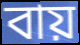
বায়